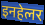
इनहेलर